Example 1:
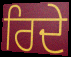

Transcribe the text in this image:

ਰਿਦੇ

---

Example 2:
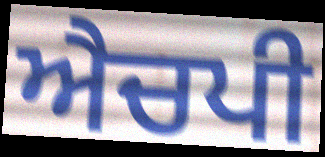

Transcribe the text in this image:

ਐਚਪੀ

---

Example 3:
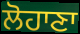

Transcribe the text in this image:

ਲੋਹਾਣਾ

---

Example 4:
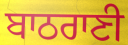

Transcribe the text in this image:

ਬਾਠਰਾਣੀ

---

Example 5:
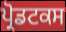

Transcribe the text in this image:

ਪ੍ਰੋਡਟਕਸ